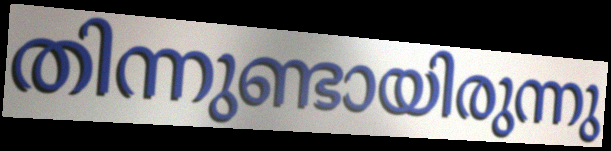
തിന്നുണ്ടായിരുന്നു